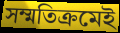
সম্মতিক্রমেই